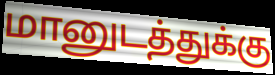
மானுடத்துக்கு